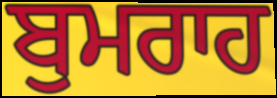
ਬੁਮਰਾਹ